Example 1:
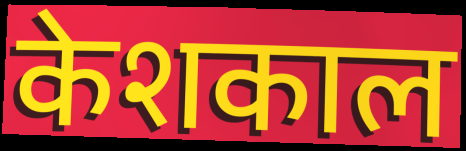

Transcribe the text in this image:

केशकाल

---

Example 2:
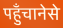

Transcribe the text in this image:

पहुँचानेसे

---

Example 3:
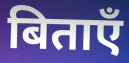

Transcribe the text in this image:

बिताएँ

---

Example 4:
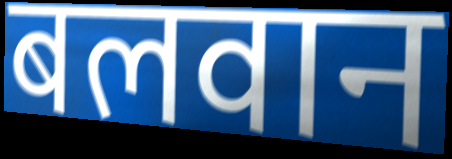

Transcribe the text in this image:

बलवान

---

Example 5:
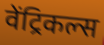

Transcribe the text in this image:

वेंट्रिकल्स